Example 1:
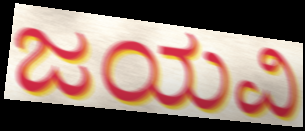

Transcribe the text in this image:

ಜಯವಿ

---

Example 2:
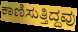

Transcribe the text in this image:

ಕಾಣಿಸುತ್ತಿದ್ದವು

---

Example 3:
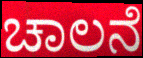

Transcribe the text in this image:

ಚಾಲನೆ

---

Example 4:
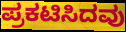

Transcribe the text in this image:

ಪ್ರಕಟಿಸಿದವು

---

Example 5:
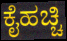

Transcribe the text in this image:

ಕೈಹಚ್ಚಿ